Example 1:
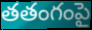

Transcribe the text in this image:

తతంగంపై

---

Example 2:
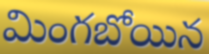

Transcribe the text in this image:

మింగబోయిన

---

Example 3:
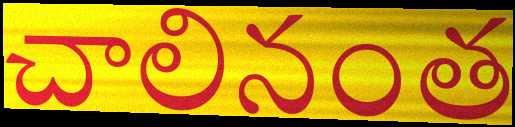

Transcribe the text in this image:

చాలినంత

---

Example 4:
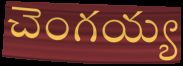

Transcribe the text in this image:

చెంగయ్య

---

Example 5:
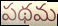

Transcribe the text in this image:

పథమ